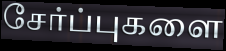
சேர்ப்புகளை